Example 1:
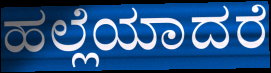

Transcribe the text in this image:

ಹಲ್ಲೆಯಾದರೆ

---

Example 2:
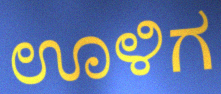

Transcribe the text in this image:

ಊಳಿಗ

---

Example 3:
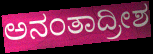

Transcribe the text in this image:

ಅನಂತಾದ್ರೀಶ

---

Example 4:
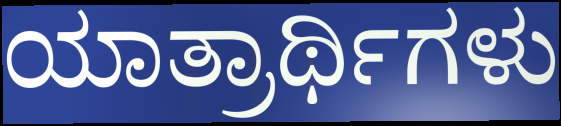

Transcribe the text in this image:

ಯಾತ್ರಾರ್ಥಿಗಳು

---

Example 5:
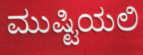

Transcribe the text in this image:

ಮುಷ್ಟಿಯಲಿ